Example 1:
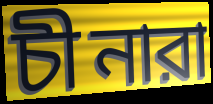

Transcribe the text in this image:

চীনারা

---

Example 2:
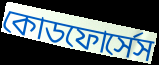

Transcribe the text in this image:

কোডফোর্সেস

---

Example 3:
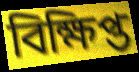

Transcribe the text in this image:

বিক্ষিপ্ত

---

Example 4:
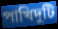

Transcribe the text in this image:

পাখিদুটি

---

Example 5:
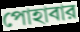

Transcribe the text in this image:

পোহাবার